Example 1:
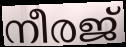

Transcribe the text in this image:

നീരജ്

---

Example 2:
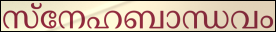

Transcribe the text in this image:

സ്നേഹബാന്ധവം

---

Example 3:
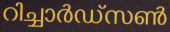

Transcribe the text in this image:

റിച്ചാർഡ്സൺ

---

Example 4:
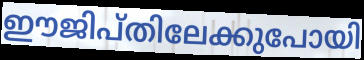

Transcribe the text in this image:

ഈജിപ്തിലേക്കുപോയി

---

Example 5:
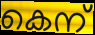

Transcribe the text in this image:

കെന്